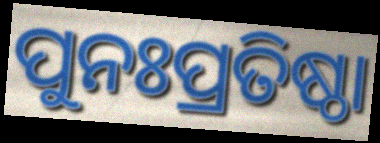
ପୁନଃପ୍ରତିଷ୍ଠା